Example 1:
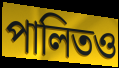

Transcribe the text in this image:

পালিতও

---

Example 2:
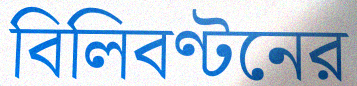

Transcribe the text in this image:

বিলিবণ্টনের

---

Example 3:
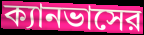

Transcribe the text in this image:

ক্যানভাসের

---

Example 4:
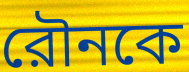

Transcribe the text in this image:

রৌনকে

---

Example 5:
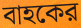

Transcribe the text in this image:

বাহকের